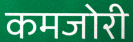
कमजोरी